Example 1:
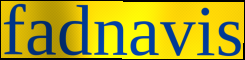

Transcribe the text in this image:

fadnavis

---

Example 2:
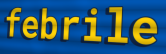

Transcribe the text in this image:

febrile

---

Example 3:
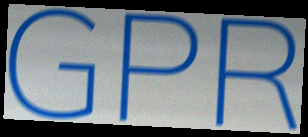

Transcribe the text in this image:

GPR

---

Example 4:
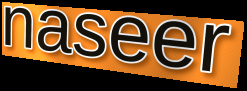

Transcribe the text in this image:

naseer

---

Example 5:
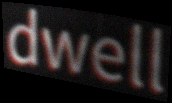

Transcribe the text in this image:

dwell